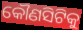
କୌଣସିଟିକୁ